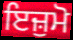
ਇਜ਼ੁਮੋ